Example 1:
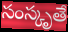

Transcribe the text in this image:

సంస్కృతే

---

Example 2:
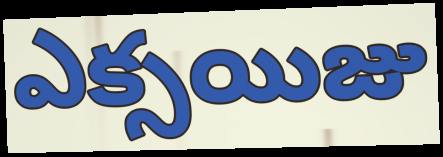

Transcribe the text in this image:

ఎక్సయిజు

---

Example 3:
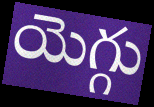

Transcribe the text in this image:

యెగ్గు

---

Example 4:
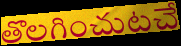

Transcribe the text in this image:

తొలగించుటచే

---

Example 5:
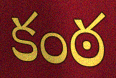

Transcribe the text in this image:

కంఠ